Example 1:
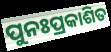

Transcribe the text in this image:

ପୁନଃପ୍ରକାଶିତ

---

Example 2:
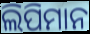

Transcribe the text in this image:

ଲିପିମାନ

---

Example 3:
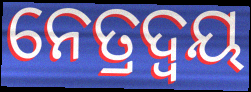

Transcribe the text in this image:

ନେତ୍ରଦ୍ୱୟ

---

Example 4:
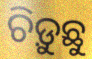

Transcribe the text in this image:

ଚିଡ଼ୁଛୁ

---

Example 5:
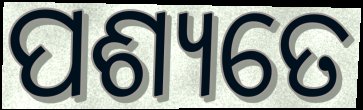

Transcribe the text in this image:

ପଶ୍ୟତେ